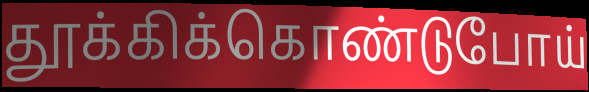
தூக்கிக்கொண்டுபோய்